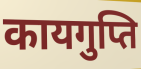
कायगुप्ति